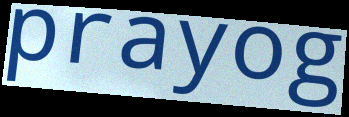
prayog